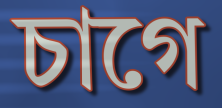
চাগে